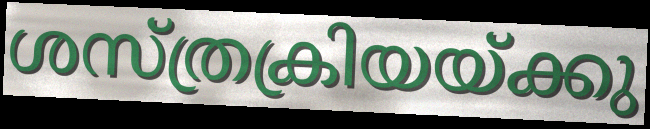
ശസ്ത്രക്രിയയ്ക്കു